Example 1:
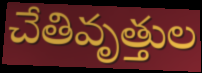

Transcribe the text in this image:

చేతివృత్తుల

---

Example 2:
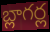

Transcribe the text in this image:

బ్లాగర్ల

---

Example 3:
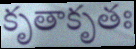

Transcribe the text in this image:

కృతాకృతః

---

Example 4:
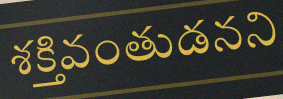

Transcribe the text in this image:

శక్తివంతుడనని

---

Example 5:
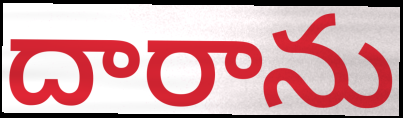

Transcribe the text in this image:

దారాను